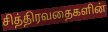
சித்திரவதைகளின்